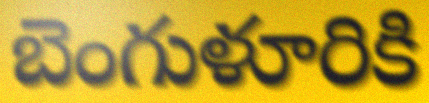
బెంగుళూరికి